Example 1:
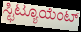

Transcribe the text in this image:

ಸ್ಟಿಟ್ಯೂಯೆಂಟ್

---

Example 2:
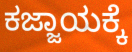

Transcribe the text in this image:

ಕಜ್ಜಾಯಕ್ಕೆ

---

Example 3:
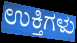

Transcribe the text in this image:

ಉಕ್ತಿಗಳು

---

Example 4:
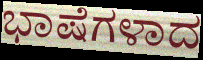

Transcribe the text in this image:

ಭಾಷೆಗಳಾದ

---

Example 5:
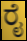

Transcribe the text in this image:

ರೈ